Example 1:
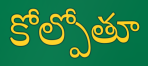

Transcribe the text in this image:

కోల్పోతూ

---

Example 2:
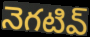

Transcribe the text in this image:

నెగటివ్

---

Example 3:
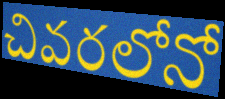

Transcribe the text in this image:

చివరలోనో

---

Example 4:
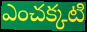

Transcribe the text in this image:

ఎంచక్కటి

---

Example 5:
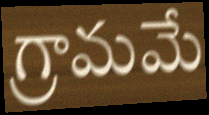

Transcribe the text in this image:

గ్రామమే